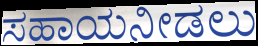
ಸಹಾಯನೀಡಲು